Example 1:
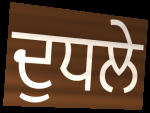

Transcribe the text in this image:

ਦੁਧਲੇ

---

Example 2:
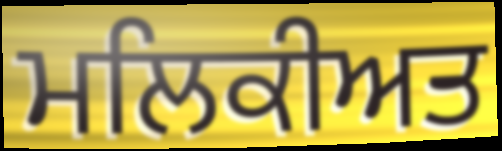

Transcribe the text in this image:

ਮਲਿਕੀਅਤ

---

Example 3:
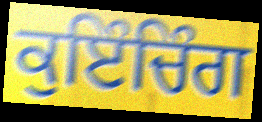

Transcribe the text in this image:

ਕੁਇੰਚਿੰਗ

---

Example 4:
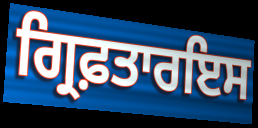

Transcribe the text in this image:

ਗ੍ਰਿਫ਼ਤਾਰਇਸ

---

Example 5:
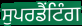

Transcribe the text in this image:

ਸੁਪਰਡੈਂਟਿੰਗ